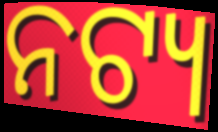
ନଟ୍ୟ